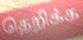
தெறிக்க